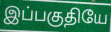
இப்பகுதியே